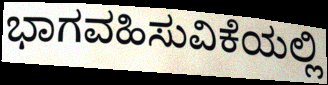
ಭಾಗವಹಿಸುವಿಕೆಯಲ್ಲಿ